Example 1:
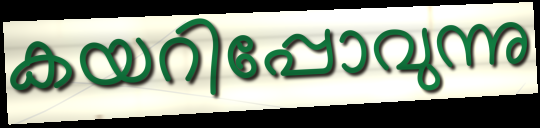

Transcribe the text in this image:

കയറിപ്പോവുന്നു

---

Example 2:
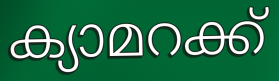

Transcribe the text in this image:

ക്യാമറക്ക്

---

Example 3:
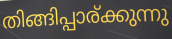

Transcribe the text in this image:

തിങ്ങിപ്പാര്ക്കുന്നു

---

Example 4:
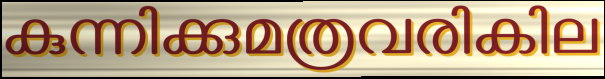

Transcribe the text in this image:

കുന്നിക്കുമത്രവരികില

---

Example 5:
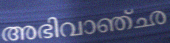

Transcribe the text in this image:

അഭിവാഞ്ഛ